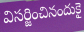
విసర్జించినందుకై